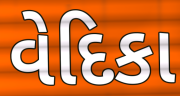
વેદિકા